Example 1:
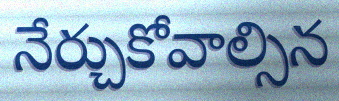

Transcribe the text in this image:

నేర్చుకోవాల్సిన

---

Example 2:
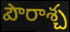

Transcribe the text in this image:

పౌరాశ్చ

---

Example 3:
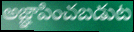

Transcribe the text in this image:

అజ్ఞాపించబడుట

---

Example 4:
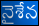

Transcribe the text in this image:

నైశేన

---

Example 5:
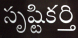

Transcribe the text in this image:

సృష్టికర్తి